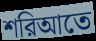
শরিআতে